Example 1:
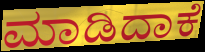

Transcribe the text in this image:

ಮಾಡಿದಾಕೆ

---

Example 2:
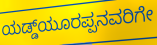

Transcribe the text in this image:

ಯಡ್ಡ್‌ಯೂರಪ್ಪನವರಿಗೇ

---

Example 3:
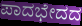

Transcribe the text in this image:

ಪಾದಭೇದದ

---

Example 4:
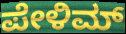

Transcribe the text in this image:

ಪೇಳಿಮ್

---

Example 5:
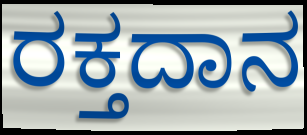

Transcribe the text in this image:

ರಕ್ತದಾನ